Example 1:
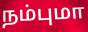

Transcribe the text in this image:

நம்புமா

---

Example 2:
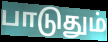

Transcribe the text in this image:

பாடுதும்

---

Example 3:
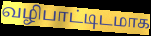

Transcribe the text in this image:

வழிபாட்டிடமாக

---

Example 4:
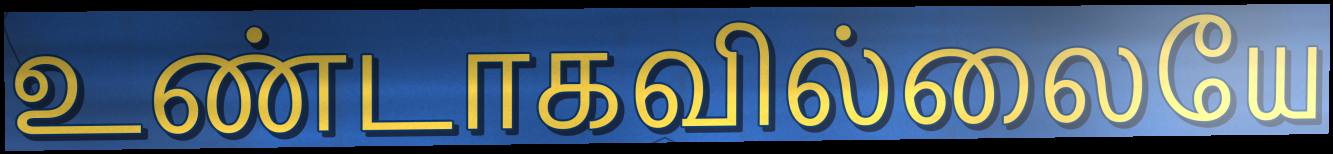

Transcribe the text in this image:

உண்டாகவில்லையே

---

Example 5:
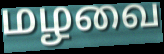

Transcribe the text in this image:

மழவை